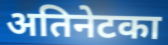
अतिनेटका